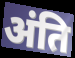
अंति